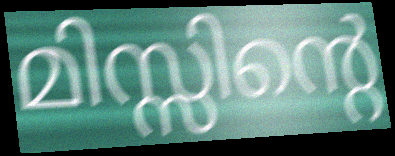
മിസ്സിന്റെ